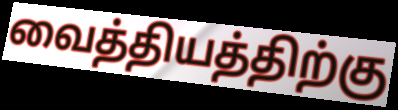
வைத்தியத்திற்கு